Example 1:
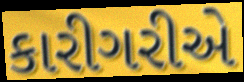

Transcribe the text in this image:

કારીગરીએ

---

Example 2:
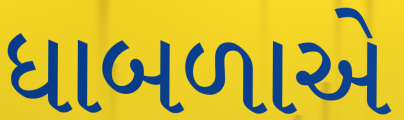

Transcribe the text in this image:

ધાબળાએ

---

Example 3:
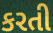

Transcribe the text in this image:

કરતી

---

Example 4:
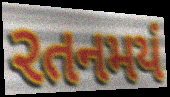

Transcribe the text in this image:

રતનમયં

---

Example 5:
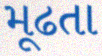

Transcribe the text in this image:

મૂઢતા